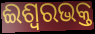
ଈଶ୍ୱରଭକ୍ତ